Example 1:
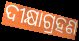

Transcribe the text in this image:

ଦୀକ୍ଷାଗ୍ରହଣ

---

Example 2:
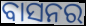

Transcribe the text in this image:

ବାସନର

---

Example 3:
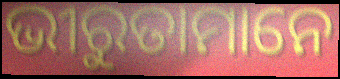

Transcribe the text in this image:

ଭୀରୁତାମାନେ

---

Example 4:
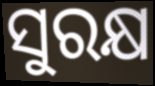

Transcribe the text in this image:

ସୁରକ୍ଷ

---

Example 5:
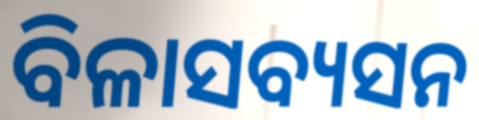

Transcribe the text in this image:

ବିଳାସବ୍ୟସନ